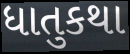
ધાતુકથા